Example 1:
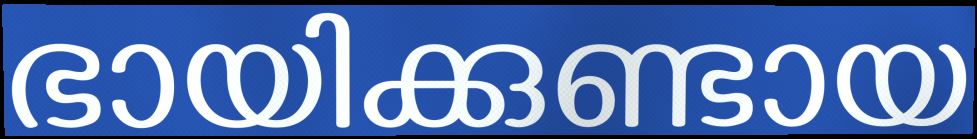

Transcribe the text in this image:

ഭായിക്കുണ്ടായ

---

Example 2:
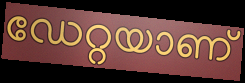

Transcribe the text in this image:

ഡേറ്റയാണ്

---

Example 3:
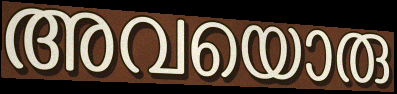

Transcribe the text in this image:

അവയൊരു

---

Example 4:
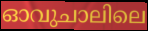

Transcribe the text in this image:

ഓവുചാലിലെ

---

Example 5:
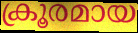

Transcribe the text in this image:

ക്രൂരമായ